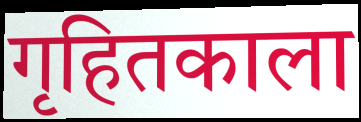
गृहितकाला